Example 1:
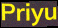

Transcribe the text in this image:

Priyu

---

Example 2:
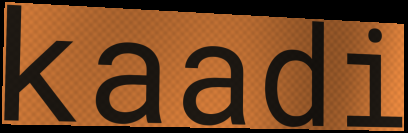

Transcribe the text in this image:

kaadi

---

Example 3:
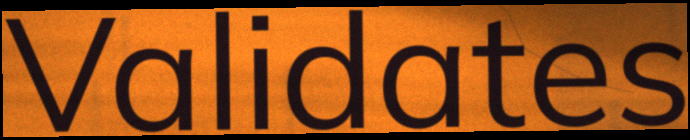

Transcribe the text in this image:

Validates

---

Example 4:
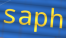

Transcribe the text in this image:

saph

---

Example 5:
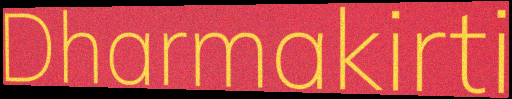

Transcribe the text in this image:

Dharmakirti